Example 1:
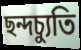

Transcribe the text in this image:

ছন্দচ্যুতি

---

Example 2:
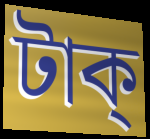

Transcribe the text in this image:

টাক্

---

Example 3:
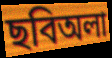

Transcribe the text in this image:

ছবিঅলা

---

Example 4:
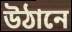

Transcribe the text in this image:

উঠানে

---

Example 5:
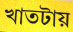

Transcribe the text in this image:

খাতটায়